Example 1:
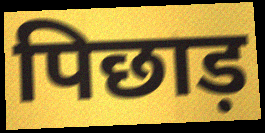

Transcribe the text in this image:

पिछाड़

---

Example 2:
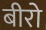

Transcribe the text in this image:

बीरो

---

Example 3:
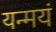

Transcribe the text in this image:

यन्मयं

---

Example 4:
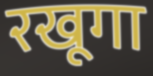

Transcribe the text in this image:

रखूगा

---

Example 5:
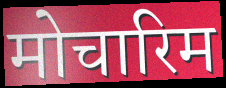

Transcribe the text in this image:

मोचारिम